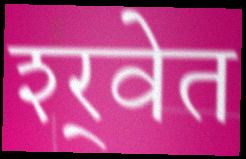
श्र्वेत